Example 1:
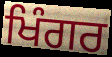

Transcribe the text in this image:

ਖਿੰਗਰ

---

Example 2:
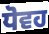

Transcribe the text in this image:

ਧੋਵਹ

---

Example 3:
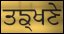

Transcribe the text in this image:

ਤਙ੍ਖਣੇ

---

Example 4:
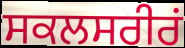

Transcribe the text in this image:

ਸਕਲਸਰੀਰਂ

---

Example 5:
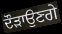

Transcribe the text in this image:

ਦੌੜਾਉਣਗੇ